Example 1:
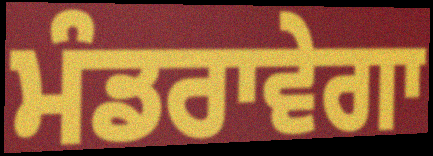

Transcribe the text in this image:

ਮੰਡਰਾਵੇਗਾ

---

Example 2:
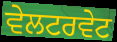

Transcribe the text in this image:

ਵੇਲਟਰਵੇਟ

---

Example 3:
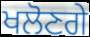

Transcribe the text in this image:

ਖਲੋਣਗੇ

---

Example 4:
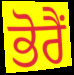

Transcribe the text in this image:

ਭੋਰੈਂ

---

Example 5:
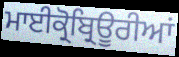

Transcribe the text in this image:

ਮਾਈਕ੍ਰੋਬ੍ਰਿਊਰੀਆਂ